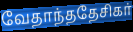
வேதாந்ததேசிகர்